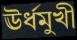
ঊর্ধমুখী